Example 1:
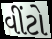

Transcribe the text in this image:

વીંટો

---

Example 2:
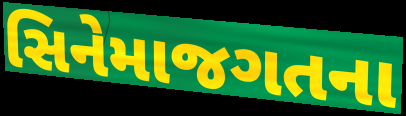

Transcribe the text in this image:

સિનેમાજગતના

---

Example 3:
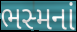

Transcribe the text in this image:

ભસ્મનાં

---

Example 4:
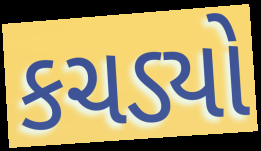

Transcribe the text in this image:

કચડ્યો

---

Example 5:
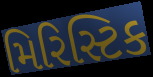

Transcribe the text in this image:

મિરિસ્ટિક